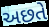
અછતે